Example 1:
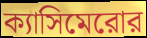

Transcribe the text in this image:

ক্যাসিমেরোর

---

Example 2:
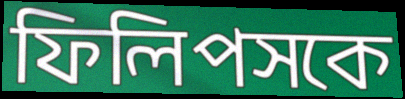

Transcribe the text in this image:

ফিলিপসকে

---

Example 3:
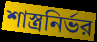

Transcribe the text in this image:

শাস্ত্রনির্ভর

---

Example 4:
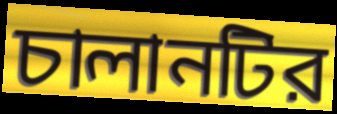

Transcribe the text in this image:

চালানটির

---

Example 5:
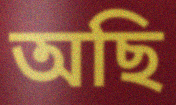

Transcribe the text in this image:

অছি